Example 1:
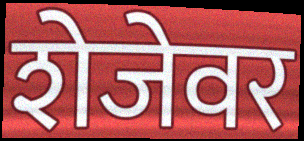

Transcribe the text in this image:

शेजेवर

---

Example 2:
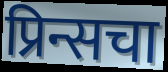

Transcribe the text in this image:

प्रिन्सचा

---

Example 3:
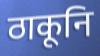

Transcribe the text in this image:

ठाकूनि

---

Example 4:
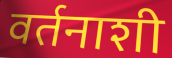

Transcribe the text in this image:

वर्तनाशी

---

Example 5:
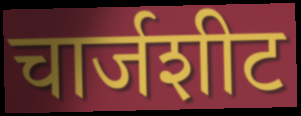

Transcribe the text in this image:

चार्जशीट